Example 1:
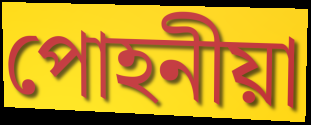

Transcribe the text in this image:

পোহনীয়া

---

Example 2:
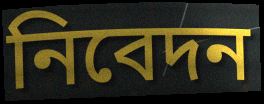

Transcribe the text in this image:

নিবেদন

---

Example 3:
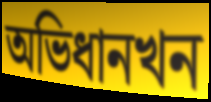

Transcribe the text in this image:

অভিধানখন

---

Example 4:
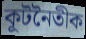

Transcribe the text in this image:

কূটনৈতীক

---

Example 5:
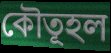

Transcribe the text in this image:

কৌতূহল